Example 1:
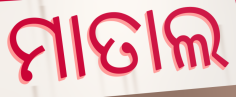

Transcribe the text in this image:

ମାତାଲ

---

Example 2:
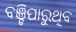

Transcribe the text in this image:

ବଞ୍ଚିପାରୁଥିବ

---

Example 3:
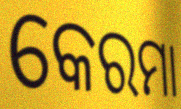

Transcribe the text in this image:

କେରମା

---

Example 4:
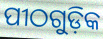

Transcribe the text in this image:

ପୀଠଗୁଡ଼ିକ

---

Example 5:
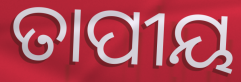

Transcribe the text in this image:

ତାପୀୟ